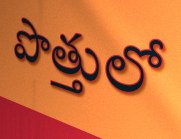
పొత్తులో